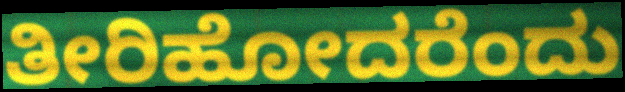
ತೀರಿಹೋದರೆಂದು